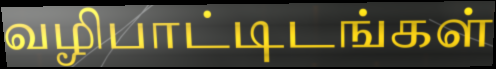
வழிபாட்டிடங்கள்